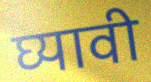
घ्यावी